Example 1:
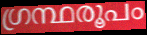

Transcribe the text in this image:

ഗ്രന്ഥരൂപം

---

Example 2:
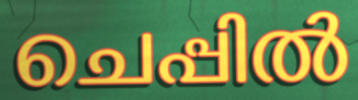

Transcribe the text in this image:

ചെപ്പിൽ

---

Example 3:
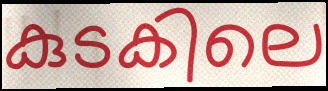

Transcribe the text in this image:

കുടകിലെ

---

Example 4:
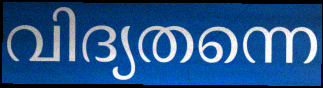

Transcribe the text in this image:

വിദ്യതന്നെ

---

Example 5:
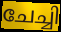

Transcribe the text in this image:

ചേച്ചി